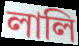
লালি